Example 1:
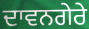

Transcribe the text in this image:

ਦਾਵਨਗੇਰੇ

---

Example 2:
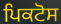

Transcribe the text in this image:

ਪਿਕਟੋਸ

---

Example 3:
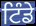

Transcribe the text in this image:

ਟਿੰਡੇ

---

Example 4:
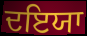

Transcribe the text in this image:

ਦਇਯਾ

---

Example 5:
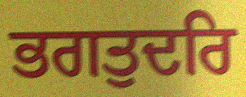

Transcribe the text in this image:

ਭਗਤੁਦਰਿ